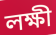
লক্ষী